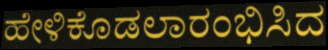
ಹೇಳಿಕೊಡಲಾರಂಭಿಸಿದ